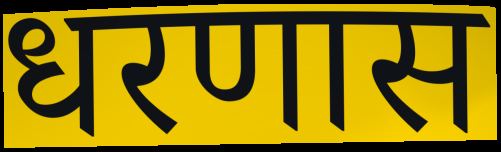
धरणास